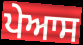
ਪੇਆਸ